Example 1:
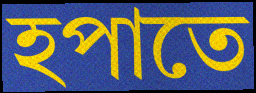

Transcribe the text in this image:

হপাতে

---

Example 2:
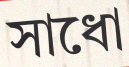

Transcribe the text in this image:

সাধো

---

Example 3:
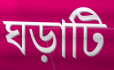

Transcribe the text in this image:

ঘড়াটি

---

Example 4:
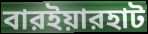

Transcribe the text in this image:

বারইয়ারহাট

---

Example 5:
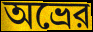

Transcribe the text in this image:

অভ্রের